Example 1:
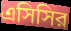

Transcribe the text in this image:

এসিসির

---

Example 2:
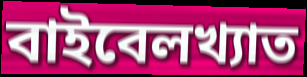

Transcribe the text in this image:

বাইবেলখ্যাত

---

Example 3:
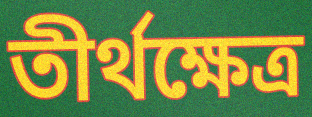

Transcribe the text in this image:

তীর্থক্ষেত্র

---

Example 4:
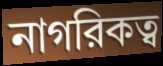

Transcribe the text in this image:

নাগরিকত্ব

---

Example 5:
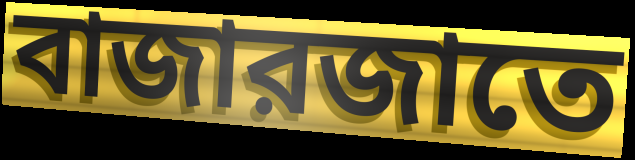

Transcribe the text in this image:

বাজারজাতে